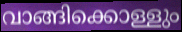
വാങ്ങിക്കൊള്ളും